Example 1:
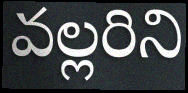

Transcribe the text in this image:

వల్లరిని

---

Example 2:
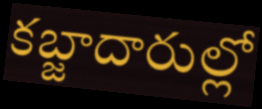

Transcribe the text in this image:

కబ్జాదారుల్లో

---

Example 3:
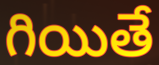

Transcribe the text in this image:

గియితే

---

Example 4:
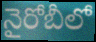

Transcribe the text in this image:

నైరోబీలో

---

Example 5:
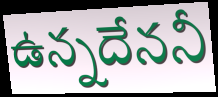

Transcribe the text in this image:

ఉన్నదేననీ